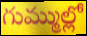
గుమ్ముల్లో